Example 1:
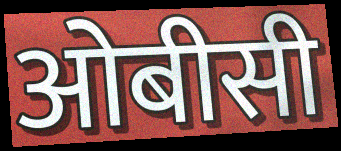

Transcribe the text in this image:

ओबीसी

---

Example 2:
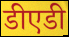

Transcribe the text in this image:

डीएडी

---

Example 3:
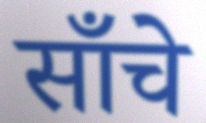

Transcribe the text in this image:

साँचे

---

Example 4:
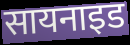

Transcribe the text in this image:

सायनाइड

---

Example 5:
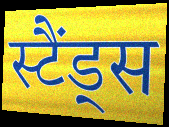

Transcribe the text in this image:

स्टैंड्स